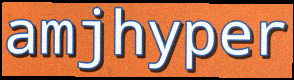
amjhyper